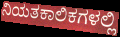
ನಿಯತಕಾಲಿಕಗಳಲ್ಲಿ